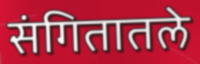
संगितातले